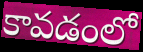
కావడంలో